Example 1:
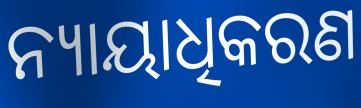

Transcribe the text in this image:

ନ୍ୟାୟାଧିକରଣ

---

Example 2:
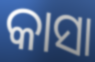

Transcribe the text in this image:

କାସା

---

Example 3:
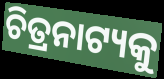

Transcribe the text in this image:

ଚିତ୍ରନାଟ୍ୟକୁ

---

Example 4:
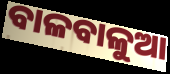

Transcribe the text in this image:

ବାଳବାଳୁଆ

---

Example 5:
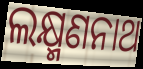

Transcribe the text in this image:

ଲକ୍ଷ୍ମଣନାଥ